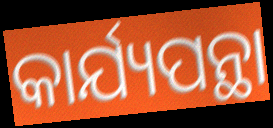
କାର୍ଯ୍ୟପନ୍ଥା